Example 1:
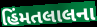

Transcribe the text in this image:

હિંમતલાલના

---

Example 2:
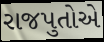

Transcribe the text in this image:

રાજપુતોએ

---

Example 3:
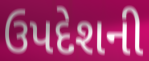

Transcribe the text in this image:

ઉપદેશની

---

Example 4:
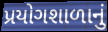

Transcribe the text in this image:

પ્રયોગશાળાનું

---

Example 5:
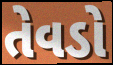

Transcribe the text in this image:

તેવડો